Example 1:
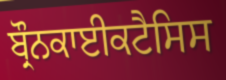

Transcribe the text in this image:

ਬ੍ਰੌਨਕਾਈਕਟੈਸਿਸ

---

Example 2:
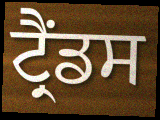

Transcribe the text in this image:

ਟ੍ਰੈਂਡਸ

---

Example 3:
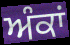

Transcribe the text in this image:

ਅੰਕਾਂ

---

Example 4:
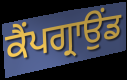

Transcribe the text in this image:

ਕੈਂਪਗ੍ਰਾਉਂਡ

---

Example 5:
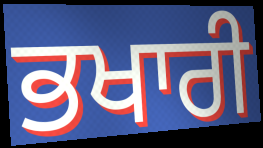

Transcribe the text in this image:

ਭਖਾਰੀ